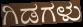
ಗಿಡಗಳು